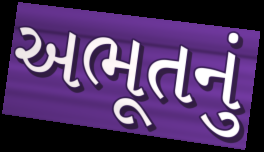
અભૂતનું